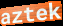
aztek